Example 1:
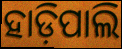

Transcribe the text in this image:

ହାଡ଼ିପାଲି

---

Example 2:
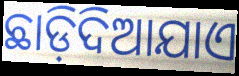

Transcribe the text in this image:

ଛାଡ଼ିଦିଆଯାଏ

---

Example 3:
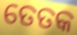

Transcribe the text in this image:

ତେତକ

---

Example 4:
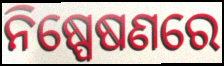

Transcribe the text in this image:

ନିଷ୍ପେଷଣରେ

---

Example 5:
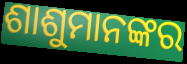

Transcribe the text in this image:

ଶାଶୁମାନଙ୍କର